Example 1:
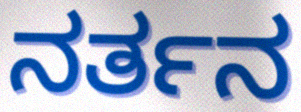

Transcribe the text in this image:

ನರ್ತನ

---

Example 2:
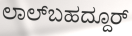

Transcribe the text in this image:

ಲಾಲ್‌ಬಹದ್ದೂರ್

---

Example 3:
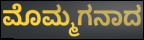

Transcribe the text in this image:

ಮೊಮ್ಮಗನಾದ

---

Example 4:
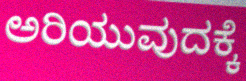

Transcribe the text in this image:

ಅರಿಯುವುದಕ್ಕೆ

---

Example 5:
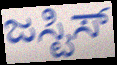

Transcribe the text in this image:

ಜಸ್ಟಿಸ್